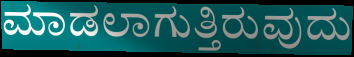
ಮಾಡಲಾಗುತ್ತಿರುವುದು